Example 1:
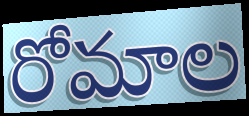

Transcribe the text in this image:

రోమాల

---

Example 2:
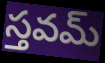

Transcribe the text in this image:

స్తవమ్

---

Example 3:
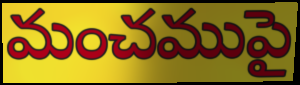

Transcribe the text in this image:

మంచముపై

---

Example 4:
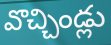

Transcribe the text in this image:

వొచ్చిండ్లు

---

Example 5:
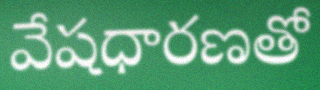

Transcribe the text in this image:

వేషధారణతో